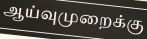
ஆய்வுமுறைக்கு